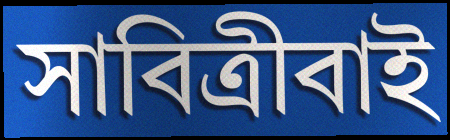
সাবিত্ৰীবাই